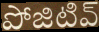
పోజిటివ్